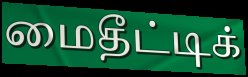
மைதீட்டிக்